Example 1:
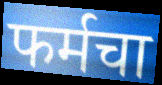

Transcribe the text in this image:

फर्मचा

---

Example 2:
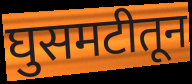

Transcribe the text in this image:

घुसमटीतून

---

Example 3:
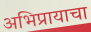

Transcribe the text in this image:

अभिप्रायाचा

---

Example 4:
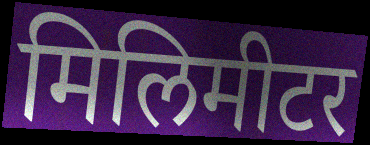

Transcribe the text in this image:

मिलिमीटर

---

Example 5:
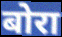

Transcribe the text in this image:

बोरा